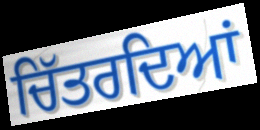
ਚਿੱਤਰਦਿਆਂ